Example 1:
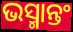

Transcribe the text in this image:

ଭସ୍ମାନ୍ତଂ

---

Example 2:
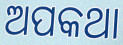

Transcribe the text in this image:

ଅପକଥା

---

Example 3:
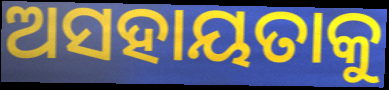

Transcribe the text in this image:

ଅସହାୟତାକୁ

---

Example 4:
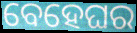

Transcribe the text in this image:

ବେହେଘର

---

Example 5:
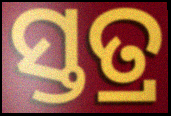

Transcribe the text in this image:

ସ୍ତତ୍ର